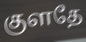
குளதே